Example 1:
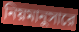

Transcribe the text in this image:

নিয়মানুসারে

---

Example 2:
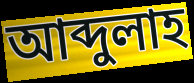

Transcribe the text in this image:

আব্দুলাহ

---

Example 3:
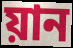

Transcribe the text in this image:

য়ান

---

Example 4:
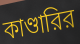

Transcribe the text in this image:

কাণ্ডারির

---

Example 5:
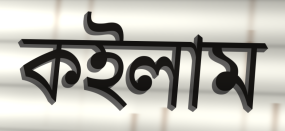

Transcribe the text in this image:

কইলাম